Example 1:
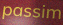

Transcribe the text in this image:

passim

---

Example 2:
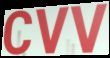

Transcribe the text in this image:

CVV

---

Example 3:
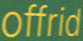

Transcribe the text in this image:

offrid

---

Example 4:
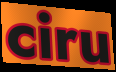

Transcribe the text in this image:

ciru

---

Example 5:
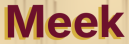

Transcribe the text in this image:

Meek